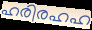
ഹരിരഹഹ